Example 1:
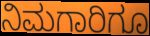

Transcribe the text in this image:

ನಿಮಗಾರಿಗೂ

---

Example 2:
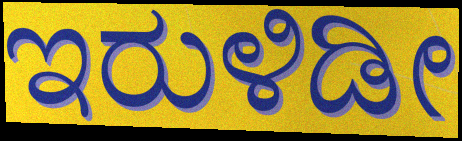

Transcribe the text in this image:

ಇರುಳಿಡೀ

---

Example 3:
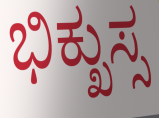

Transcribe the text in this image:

ಭಿಕ್ಖುಸ್ಸ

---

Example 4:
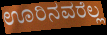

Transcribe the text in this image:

ಊರಿನವರೆಲ್ಲ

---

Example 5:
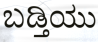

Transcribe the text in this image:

ಬಡ್ತಿಯು